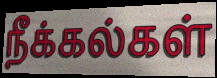
நீக்கல்கள்